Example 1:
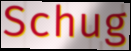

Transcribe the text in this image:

Schug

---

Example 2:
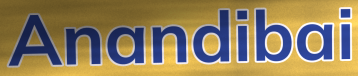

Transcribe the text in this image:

Anandibai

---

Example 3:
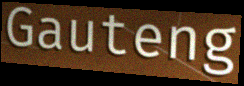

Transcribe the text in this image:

Gauteng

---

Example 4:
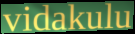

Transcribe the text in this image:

vidakulu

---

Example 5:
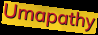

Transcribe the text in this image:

Umapathy